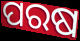
ପରଷ